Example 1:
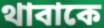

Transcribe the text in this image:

থাবাকে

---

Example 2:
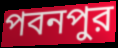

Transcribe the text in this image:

পবনপুর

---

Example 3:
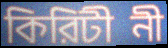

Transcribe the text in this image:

কিরিটীনী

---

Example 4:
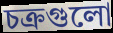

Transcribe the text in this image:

চক্রগুলো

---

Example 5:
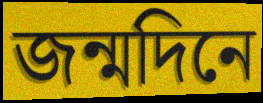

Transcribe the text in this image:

জন্মদিনে